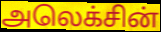
அலெக்சின்